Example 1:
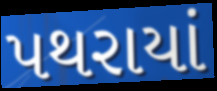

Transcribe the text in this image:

પથરાયાં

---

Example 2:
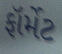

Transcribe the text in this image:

ફૉર્મેટ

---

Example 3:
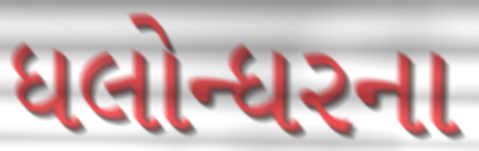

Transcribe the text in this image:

ધલોન્ધરના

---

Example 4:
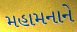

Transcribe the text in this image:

મહામનાને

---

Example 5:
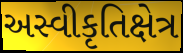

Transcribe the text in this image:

અસ્વીકૃતિક્ષેત્ર